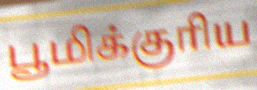
பூமிக்குரிய